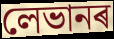
লেভানৰ